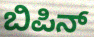
ಬಿಪಿನ್